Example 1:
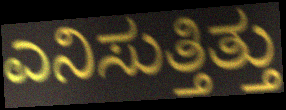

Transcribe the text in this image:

ಎನಿಸುತ್ತಿತ್ತು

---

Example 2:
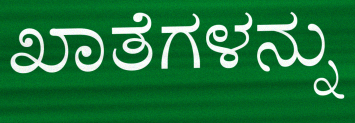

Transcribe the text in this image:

ಖಾತೆಗಳನ್ನು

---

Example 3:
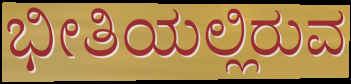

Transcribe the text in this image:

ಭೀತಿಯಲ್ಲಿರುವ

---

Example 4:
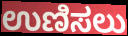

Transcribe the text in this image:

ಉಣಿಸಲು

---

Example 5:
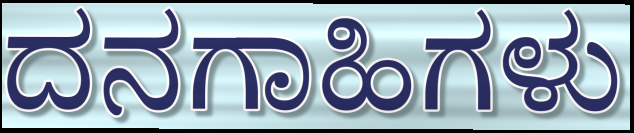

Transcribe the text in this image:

ದನಗಾಹಿಗಳು